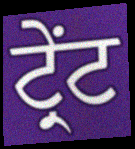
ਟ੍ਰੇਂਟ